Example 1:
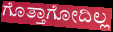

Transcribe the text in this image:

ಗೊತ್ತಾಗೋದಿಲ್ಲ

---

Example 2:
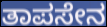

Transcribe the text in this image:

ತಾಪಸೇನ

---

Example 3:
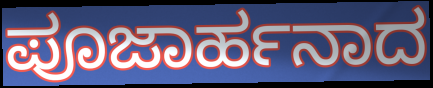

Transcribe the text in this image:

ಪೂಜಾರ್ಹನಾದ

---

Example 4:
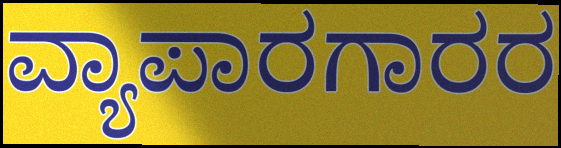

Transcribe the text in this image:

ವ್ಯಾಪಾರಗಾರರ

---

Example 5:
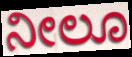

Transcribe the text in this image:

ನೀಲೂ